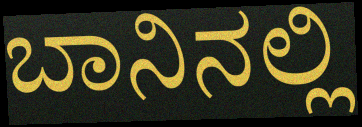
ಬಾನಿನಲ್ಲಿ